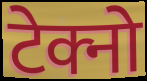
टेक्‍नो